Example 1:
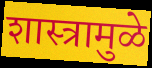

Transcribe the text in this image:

शास्त्रामुळे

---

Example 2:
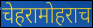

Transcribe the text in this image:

चेहरामोहराच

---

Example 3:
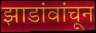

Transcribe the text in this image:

झाडांवांचून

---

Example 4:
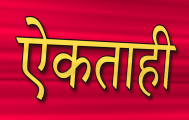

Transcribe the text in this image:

ऐकताही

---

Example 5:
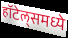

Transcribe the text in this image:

हॉटेल्समध्ये